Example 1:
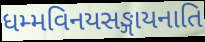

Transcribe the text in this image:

ધમ્મવિનયસઙ્ગાયનાતિ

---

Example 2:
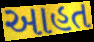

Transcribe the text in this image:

આહત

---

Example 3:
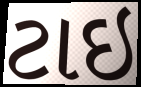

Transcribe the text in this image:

ટાઇ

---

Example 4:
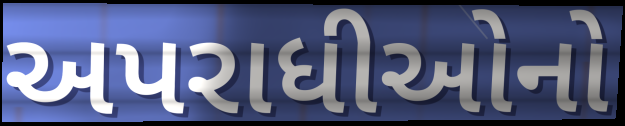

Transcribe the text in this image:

અપરાધીઓનો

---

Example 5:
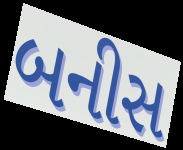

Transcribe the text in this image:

બનીસ